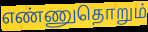
எண்ணுதொறும்